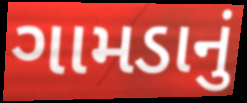
ગામડાનું